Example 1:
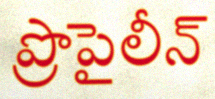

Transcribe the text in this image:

ప్రొపైలీన్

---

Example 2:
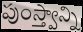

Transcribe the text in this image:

పుంస్త్వాన్ని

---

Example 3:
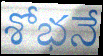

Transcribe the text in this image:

శోభనే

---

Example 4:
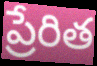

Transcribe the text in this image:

ప్రేరిత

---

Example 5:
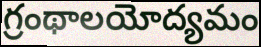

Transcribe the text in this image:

గ్రంథాలయోద్యమం